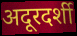
अदूरदर्शी